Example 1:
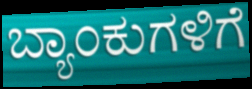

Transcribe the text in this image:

ಬ್ಯಾಂಕುಗಳಿಗೆ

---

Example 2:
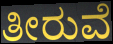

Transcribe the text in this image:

ತೀರುವೆ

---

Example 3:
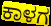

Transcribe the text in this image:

ಕಾಳಗ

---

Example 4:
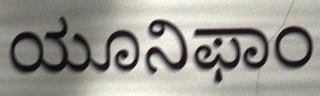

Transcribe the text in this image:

ಯೂನಿಫಾಂ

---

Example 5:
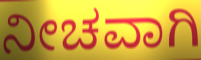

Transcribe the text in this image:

ನೀಚವಾಗಿ